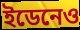
ইডেনেও